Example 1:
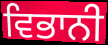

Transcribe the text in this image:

ਵਿਭਾਨੀ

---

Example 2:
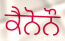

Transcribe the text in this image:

ਕੈਨੋਨੌ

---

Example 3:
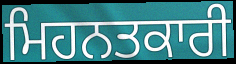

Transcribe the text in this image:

ਮਿਹਨਤਕਾਰੀ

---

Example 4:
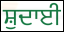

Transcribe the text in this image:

ਸ਼ੁਦਾਈ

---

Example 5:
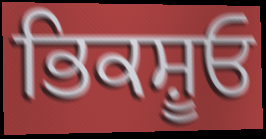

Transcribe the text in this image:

ਭਿਕਸ਼ੂਓ